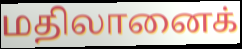
மதிலானைக்